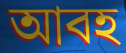
আবহ